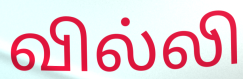
வில்லி